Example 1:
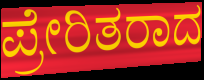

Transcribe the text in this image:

ಪ್ರೇರಿತರಾದ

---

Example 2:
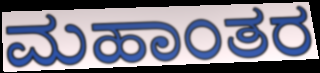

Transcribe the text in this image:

ಮಹಾಂತರ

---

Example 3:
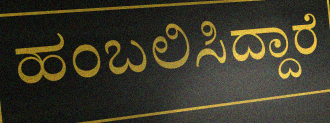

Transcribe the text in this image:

ಹಂಬಲಿಸಿದ್ದಾರೆ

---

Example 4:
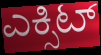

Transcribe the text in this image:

ಎಕ್ಸಿಟ್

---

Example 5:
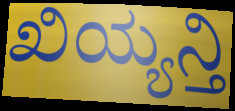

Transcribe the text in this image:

ಖಿಯ್ಯನ್ತಿ